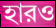
হারও